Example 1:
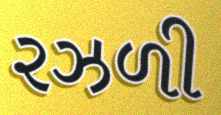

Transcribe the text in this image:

રઝળી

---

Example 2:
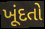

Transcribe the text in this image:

ખૂંદતો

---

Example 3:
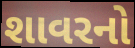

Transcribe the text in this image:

શાવરનો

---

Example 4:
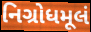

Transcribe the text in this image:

નિગ્રોધમૂલં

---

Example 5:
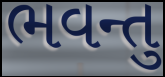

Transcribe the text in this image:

ભવન્તુ